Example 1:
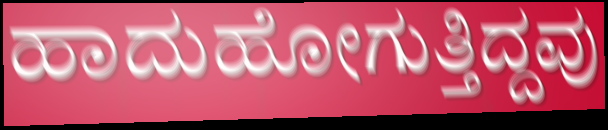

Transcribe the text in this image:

ಹಾದುಹೋಗುತ್ತಿದ್ದವು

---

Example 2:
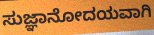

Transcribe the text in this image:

ಸುಜ್ಞಾನೋದಯವಾಗಿ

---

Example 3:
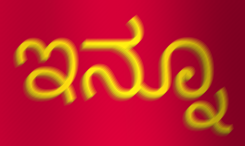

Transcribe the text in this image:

ಇನ್ನೂ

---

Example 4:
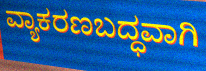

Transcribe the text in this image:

ವ್ಯಾಕರಣಬದ್ಧವಾಗಿ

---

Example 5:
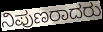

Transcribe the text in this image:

ನಿಪುಣರಾದರು